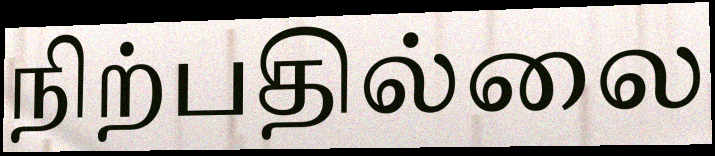
நிற்பதில்லை